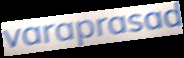
varaprasad